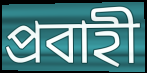
প্রবাহী